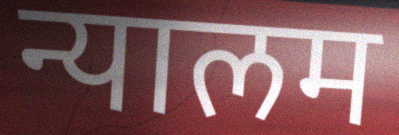
न्यालम